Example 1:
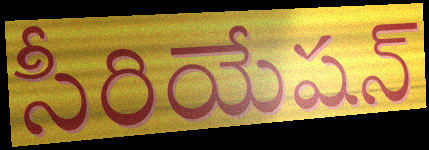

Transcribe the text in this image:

సీరియేషన్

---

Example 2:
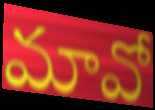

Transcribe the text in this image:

మావో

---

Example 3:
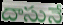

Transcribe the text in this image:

దాసునే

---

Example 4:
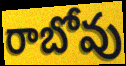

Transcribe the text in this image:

రాబోవు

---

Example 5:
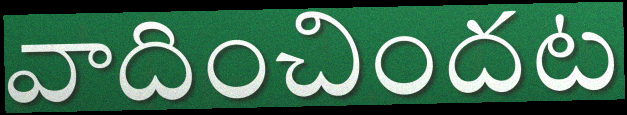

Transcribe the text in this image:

వాదించిందట